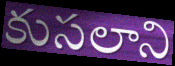
కుసలాని